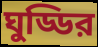
ঘুড্ডির